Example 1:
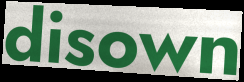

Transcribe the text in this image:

disown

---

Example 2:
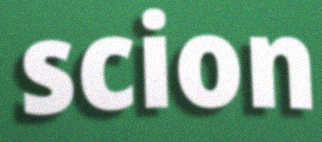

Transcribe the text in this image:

scion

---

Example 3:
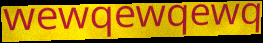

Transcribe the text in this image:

wewqewqewq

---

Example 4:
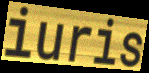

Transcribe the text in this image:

iuris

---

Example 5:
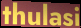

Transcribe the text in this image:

thulasi